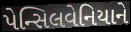
પેન્સિલવેનિયાને